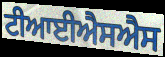
ਟੀਆਈਐਸਐਸ